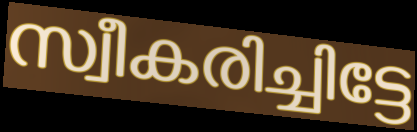
സ്വീകരിച്ചിട്ടേ